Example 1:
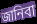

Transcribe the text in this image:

জানিবা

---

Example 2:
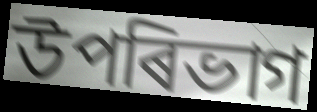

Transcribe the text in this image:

উপৰিভাগ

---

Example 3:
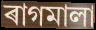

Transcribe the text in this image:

ৰাগমালা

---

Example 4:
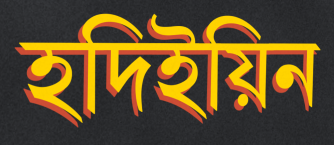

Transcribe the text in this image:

হদিইয়িন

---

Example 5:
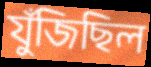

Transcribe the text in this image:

যুঁজিছিল